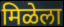
मिळेला